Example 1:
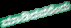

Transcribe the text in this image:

ಮಾಡಿದವರೆಂದು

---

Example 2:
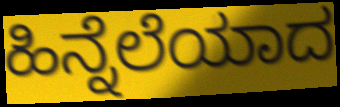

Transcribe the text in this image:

ಹಿನ್ನೆಲೆಯಾದ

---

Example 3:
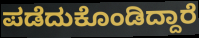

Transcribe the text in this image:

ಪಡೆದುಕೊಂಡಿದ್ದಾರೆ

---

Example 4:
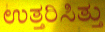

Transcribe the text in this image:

ಉತ್ತರಿಸಿತ್ತು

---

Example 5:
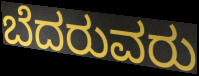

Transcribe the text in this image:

ಬೆದರುವರು